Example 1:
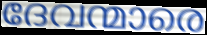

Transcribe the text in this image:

ദേവന്മാരെ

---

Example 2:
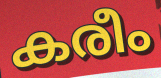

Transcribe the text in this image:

കരീം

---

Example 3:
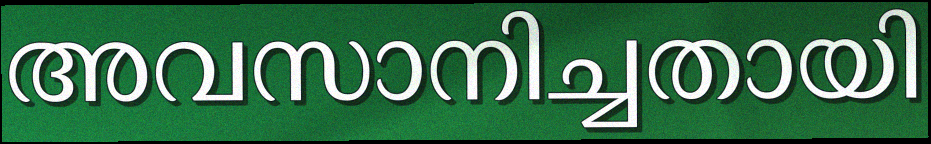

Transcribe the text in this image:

അവസാനിച്ചതായി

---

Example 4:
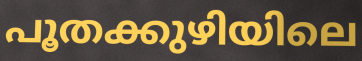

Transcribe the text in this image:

പൂതക്കുഴിയിലെ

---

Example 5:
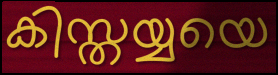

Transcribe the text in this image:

കിസ്തയ്യയെ